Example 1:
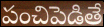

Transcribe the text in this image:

పంచిపెడితే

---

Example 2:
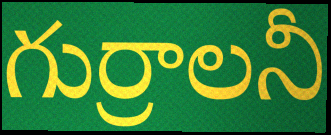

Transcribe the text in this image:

గుర్రాలనీ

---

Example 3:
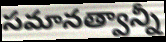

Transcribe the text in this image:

సమానత్వాన్నీ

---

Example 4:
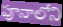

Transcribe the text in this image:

పూనాలోని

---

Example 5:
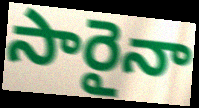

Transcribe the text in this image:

సారైనా